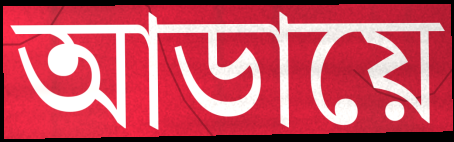
আডায়ে